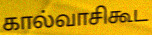
கால்வாசிகூட